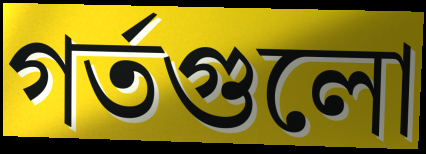
গর্তগুলো